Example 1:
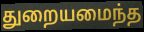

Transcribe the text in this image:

துறையமைந்த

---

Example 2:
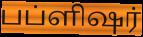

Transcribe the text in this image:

பப்ளிஷர்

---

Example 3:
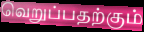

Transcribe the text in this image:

வெறுப்பதற்கும்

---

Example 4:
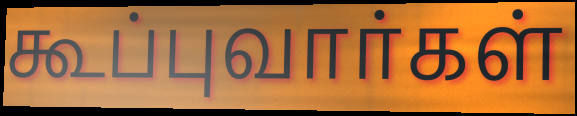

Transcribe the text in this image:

கூப்புவார்கள்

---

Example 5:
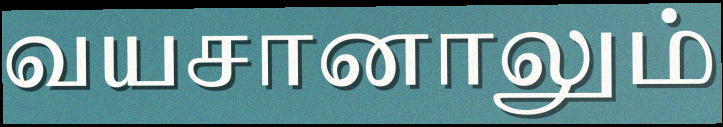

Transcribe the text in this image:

வயசானாலும்